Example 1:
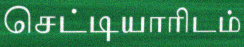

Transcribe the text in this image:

செட்டியாரிடம்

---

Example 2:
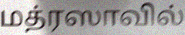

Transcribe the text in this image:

மத்ரஸாவில்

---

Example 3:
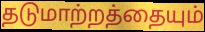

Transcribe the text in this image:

தடுமாற்றத்தையும்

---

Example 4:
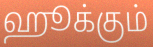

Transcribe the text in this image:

ஹூக்கும்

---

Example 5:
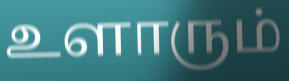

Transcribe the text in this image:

உளாரும்